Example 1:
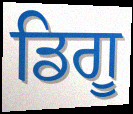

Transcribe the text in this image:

ਡਿਗੂ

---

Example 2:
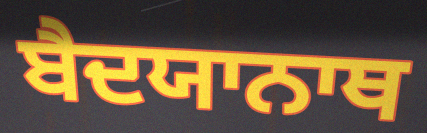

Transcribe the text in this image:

ਬੈਦਯਾਨਾਥ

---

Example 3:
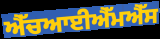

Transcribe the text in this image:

ਐੱਚਆਈਐੱਮਐੱਸ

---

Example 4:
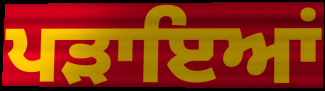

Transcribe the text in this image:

ਪੜਾਇਆਂ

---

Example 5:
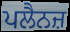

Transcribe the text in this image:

ਪਲੈਨਜ਼